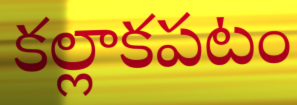
కల్లాకపటం